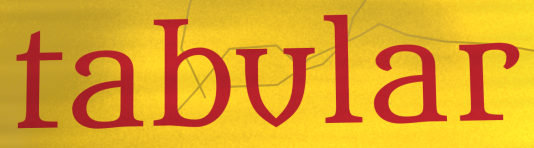
tabular